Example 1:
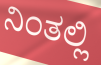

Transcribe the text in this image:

ನಿಂತಲ್ಲಿ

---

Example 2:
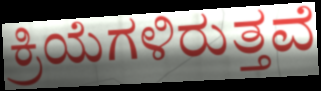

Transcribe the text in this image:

ಕ್ರಿಯೆಗಳಿರುತ್ತವೆ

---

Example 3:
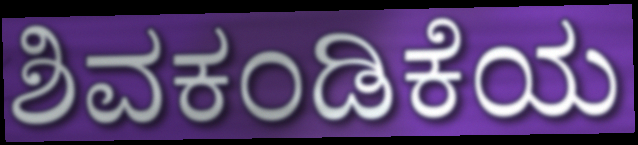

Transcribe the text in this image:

ಶಿವಕಂಡಿಕೆಯ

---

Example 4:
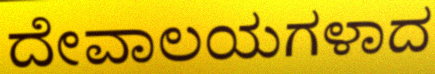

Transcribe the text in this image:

ದೇವಾಲಯಗಳಾದ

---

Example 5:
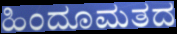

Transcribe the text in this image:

ಹಿಂದೂಮತದ